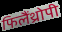
फिलैंथ्रोपी